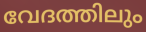
വേദത്തിലും